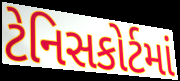
ટેનિસકોર્ટમાં